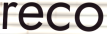
reco